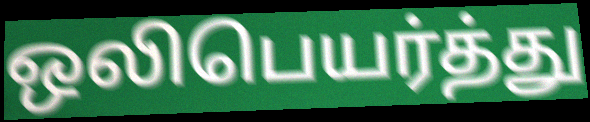
ஒலிபெயர்த்து